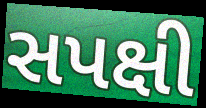
સપક્ષી